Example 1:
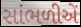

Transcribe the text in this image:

સાંભળીએં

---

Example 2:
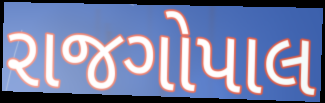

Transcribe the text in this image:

રાજગોપાલ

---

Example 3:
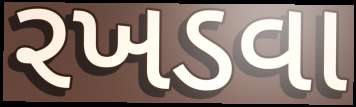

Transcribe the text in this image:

રખડવા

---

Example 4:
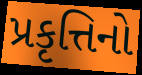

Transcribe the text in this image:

પ્રકૃત્તિનો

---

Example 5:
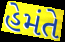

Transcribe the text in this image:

હેમંતે